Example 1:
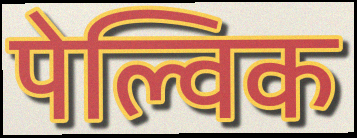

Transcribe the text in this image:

पेल्विक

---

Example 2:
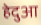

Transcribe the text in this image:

हेदुआ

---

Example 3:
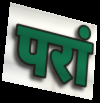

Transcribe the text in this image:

परां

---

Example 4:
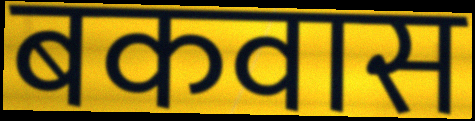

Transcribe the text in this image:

बकवास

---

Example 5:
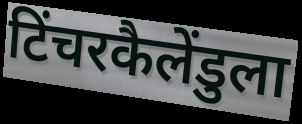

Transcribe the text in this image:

टिंचरकैलेंडुला